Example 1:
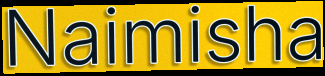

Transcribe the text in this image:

Naimisha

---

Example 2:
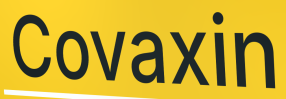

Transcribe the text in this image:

Covaxin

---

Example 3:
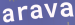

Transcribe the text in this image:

arava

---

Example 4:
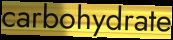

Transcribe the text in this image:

carbohydrate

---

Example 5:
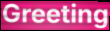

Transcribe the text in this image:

Greeting